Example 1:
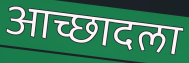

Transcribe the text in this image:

आच्छादला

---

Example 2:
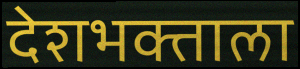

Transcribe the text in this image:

देशभक्ताला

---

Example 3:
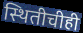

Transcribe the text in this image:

स्थितीचीही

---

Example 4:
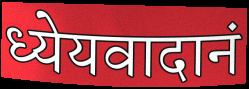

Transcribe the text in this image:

ध्येयवादानं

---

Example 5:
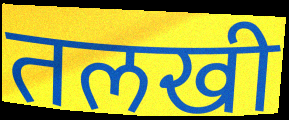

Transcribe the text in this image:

तलखी